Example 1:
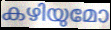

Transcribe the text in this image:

കഴിയുമോ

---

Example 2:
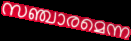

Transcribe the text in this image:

സഞ്ചാരമെന്ന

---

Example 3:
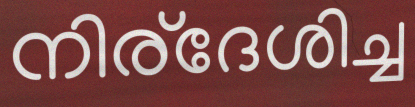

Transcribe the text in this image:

നിര്ദേശിച്ച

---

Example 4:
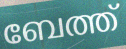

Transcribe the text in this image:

ബേത്ത്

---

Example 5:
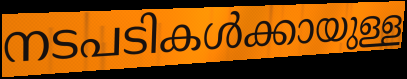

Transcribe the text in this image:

നടപടികൾക്കായുള്ള